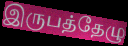
இருபத்தேழு